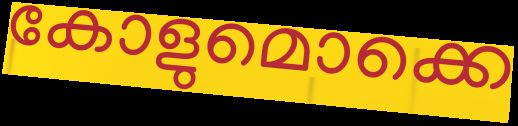
കോളുമൊക്കെ